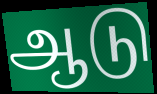
ஆடு